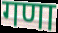
गणा